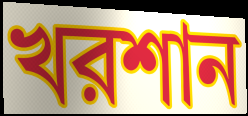
খরশান